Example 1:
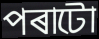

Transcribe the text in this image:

পৰাটো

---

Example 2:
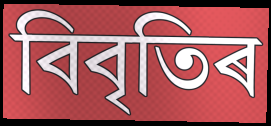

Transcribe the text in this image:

বিবৃতিৰ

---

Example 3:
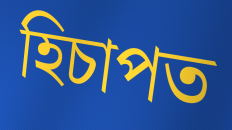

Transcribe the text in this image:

হিচাপত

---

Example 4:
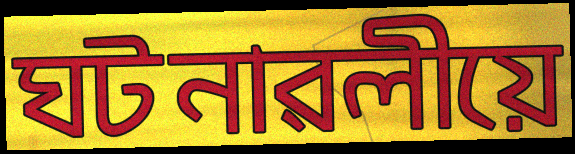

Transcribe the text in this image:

ঘটনাৱলীয়ে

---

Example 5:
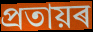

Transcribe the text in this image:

প্ৰতায়ৰ